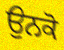
ਉਨਕੋ